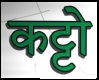
कट्टो